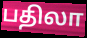
பதிலா